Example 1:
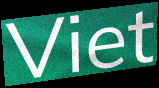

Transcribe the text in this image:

Viet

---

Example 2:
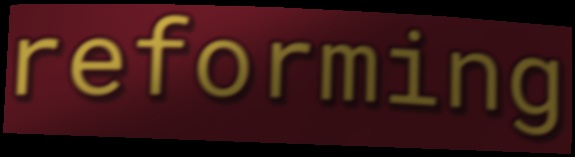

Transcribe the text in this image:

reforming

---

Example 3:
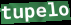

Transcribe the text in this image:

tupelo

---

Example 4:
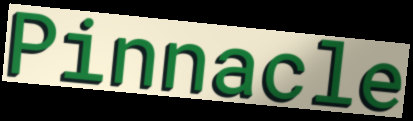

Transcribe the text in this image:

Pinnacle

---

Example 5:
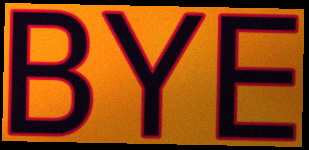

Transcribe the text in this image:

BYE